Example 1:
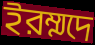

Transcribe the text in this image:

ইরম্মদে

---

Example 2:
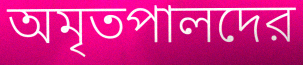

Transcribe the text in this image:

অমৃতপালদের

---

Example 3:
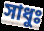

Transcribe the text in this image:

সাধুঃ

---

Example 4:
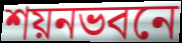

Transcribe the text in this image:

শয়নভবনে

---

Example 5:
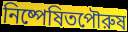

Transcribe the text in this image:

নিষ্পেষিতপৌরুষ